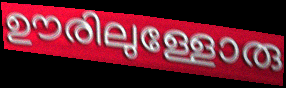
ഊരിലുള്ളോരു